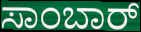
ಸಾಂಬಾರ್